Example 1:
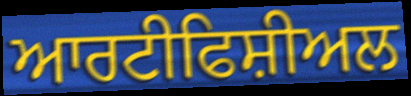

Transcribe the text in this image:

ਆਰਟੀਫਿਸ਼ੀਅਲ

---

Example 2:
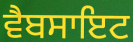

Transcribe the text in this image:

ਵੈਬਸਾਇਟ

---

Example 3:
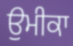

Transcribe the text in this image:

ਉਮੀਕਾ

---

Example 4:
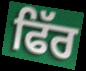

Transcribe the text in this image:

ਫਿੱਰ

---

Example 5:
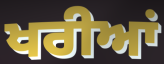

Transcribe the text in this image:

ਖਰੀਆਂ